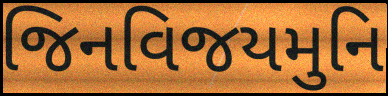
જિનવિજયમુનિ